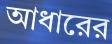
আধারের